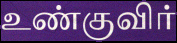
உண்குவிர்